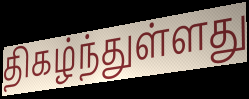
திகழ்ந்துள்ளது